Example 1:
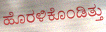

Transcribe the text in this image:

ಹೊರಳಿಕೊಂಡಿತ್ತು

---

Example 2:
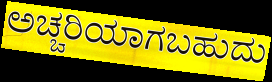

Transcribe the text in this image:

ಅಚ್ಚರಿಯಾಗಬಹುದು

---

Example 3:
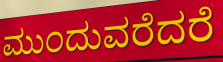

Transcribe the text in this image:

ಮುಂದುವರೆದರೆ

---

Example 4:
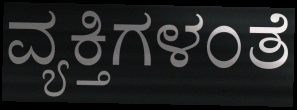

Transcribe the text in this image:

ವ್ಯಕ್ತಿಗಳಂತೆ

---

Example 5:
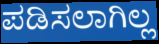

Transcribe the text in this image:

ಪಡಿಸಲಾಗಿಲ್ಲ